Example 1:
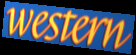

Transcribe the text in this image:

western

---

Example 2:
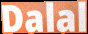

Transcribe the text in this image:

Dalal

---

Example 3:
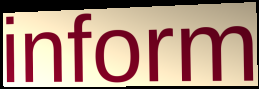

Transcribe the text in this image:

inform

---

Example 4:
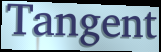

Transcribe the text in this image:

Tangent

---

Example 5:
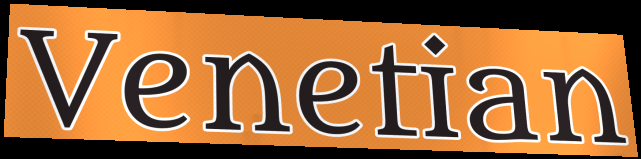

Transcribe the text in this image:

Venetian